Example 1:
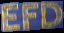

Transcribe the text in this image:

EFD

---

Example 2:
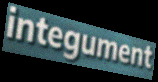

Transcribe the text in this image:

integument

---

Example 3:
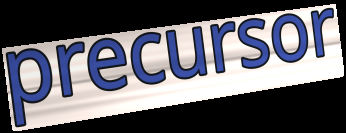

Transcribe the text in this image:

precursor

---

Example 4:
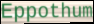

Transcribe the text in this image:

Eppothum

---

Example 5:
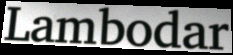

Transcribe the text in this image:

Lambodar